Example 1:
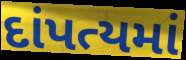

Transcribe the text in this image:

દાંપત્યમાં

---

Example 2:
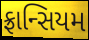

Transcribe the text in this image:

ફ્રાન્સિયમ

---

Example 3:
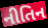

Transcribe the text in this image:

નીતિન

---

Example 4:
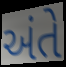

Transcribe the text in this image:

અંતે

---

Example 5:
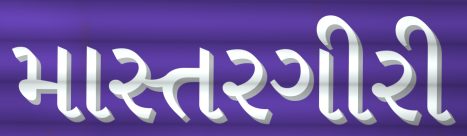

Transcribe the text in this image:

માસ્તરગીરી